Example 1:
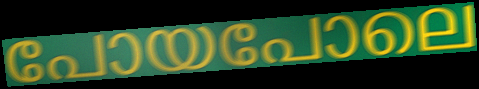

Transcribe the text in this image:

പോയപോലെ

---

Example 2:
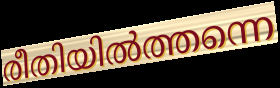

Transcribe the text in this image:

രീതിയിൽത്തന്നെ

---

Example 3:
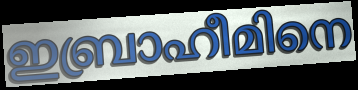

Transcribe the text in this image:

ഇബ്രാഹീമിനെ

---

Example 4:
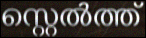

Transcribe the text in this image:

സ്റ്റെൽത്ത്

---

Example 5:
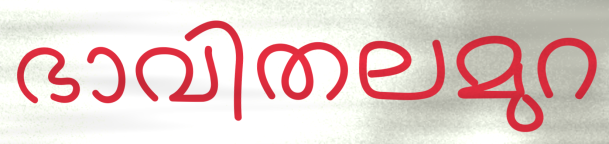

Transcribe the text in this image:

ഭാവിതലമുറ